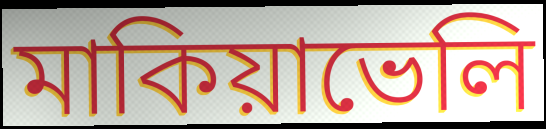
মাকিয়াভেলি